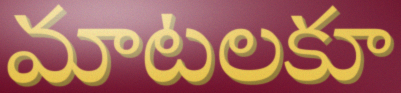
మాటలకూ